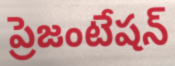
ప్రెజంటేషన్